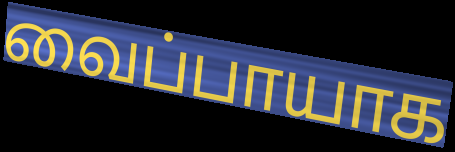
வைப்பாயாக